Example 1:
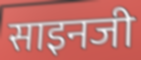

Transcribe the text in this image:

साइनजी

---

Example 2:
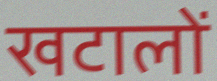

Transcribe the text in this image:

खटालों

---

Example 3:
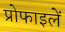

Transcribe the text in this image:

प्रोफाइलें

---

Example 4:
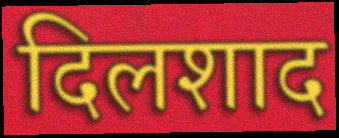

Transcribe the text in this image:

दिलशाद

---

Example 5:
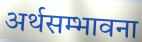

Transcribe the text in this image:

अर्थसम्भावना